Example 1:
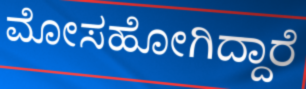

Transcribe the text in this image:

ಮೋಸಹೋಗಿದ್ದಾರೆ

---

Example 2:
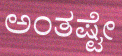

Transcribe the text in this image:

ಅಂತಷ್ಟೇ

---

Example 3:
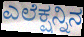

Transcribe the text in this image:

ಎಲೆಕ್ಷನ್ನಿನ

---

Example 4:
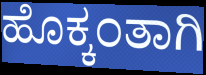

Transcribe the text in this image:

ಹೊಕ್ಕಂತಾಗಿ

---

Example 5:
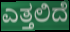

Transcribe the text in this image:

ಎತ್ತಲಿದೆ